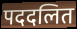
पददलित